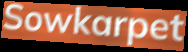
Sowkarpet